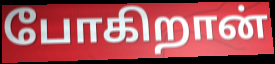
போகிறான்